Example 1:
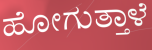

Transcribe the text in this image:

ಹೋಗುತ್ತಾಳೆ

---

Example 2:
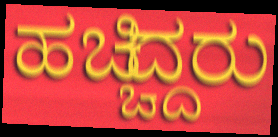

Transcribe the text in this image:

ಹಚ್ಚಿದ್ದರು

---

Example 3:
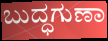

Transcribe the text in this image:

ಬುದ್ಧಗುಣಾ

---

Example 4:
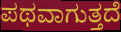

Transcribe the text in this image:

ಪಥವಾಗುತ್ತದೆ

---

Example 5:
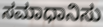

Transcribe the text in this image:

ಸಮಾಧಾನಿಸು